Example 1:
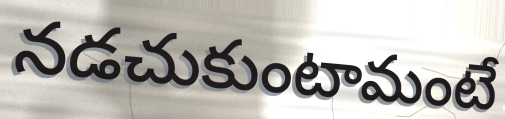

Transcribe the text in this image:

నడచుకుంటామంటే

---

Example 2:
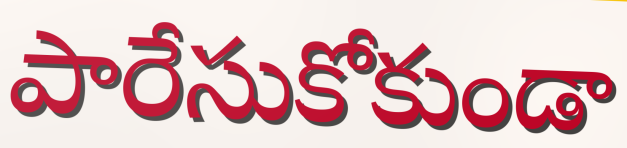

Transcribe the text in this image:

పారేసుకోకుండా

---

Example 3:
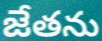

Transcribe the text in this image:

జేతను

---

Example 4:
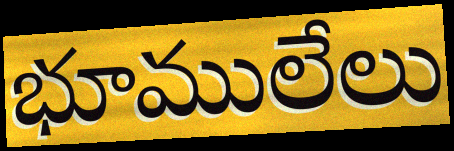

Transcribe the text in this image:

భూములేలు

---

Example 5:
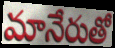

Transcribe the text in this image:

మానేరుతో